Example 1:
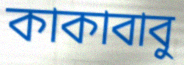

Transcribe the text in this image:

কাকাবাবু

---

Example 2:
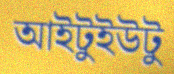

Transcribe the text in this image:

আইটুইউটু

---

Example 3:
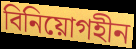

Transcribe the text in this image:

বিনিয়োগহীন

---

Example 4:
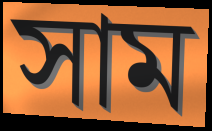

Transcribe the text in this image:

সাম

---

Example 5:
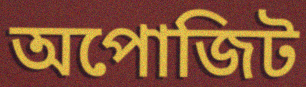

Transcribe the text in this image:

অপোজিট